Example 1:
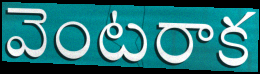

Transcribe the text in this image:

వెంటరాక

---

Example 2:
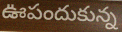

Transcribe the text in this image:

ఊపందుకున్న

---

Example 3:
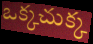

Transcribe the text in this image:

ఒక్కచుక్క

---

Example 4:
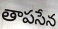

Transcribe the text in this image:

తాపసేన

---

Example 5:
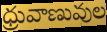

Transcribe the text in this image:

ధ్రువాణువుల